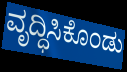
ವೃದ್ಧಿಸಿಕೊಂಡು